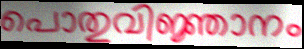
പൊതുവിജ്ഞാനം